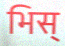
भिस्